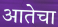
आतेचा